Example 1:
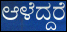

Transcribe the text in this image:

ಆಳೆದ್ದರೆ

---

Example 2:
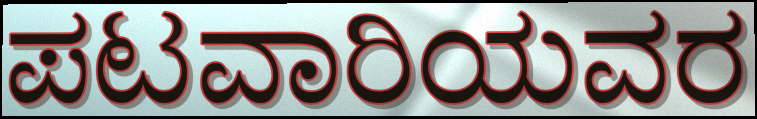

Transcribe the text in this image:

ಪಟವಾರಿಯವರ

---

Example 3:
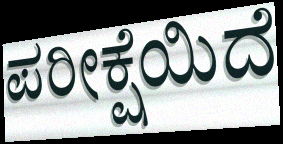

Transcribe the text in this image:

ಪರೀಕ್ಷೆಯಿದೆ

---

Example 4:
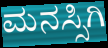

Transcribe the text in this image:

ಮನಸ್ಸಿಗಿ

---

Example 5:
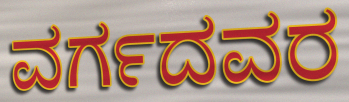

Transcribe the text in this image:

ವರ್ಗದವರ